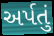
અર્પતું